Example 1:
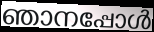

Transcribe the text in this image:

ഞാനപ്പോൾ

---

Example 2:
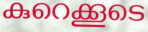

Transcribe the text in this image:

കുറെക്കൂടെ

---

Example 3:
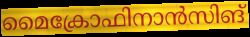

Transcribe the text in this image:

മൈക്രോഫിനാൻസിങ്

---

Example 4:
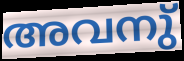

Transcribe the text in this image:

അവനു്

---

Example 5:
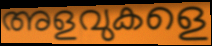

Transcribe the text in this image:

അളവുകളെ